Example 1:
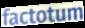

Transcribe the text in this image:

factotum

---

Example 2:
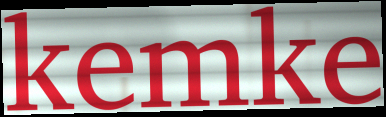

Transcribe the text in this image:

kemke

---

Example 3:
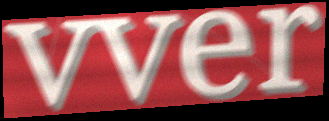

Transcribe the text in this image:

vver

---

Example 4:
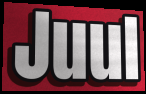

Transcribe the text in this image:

Juul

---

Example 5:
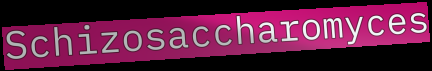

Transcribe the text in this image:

Schizosaccharomyces